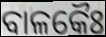
ବାଳକୈଃ